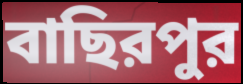
বাছিরপুর